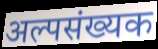
अल्पसंख्यक